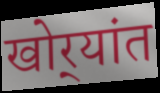
खोर्यांत